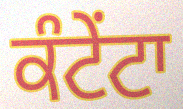
ਕੰਟੇਂਟਾ